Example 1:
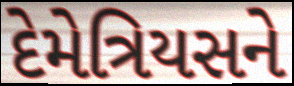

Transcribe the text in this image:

દેમેત્રિયસને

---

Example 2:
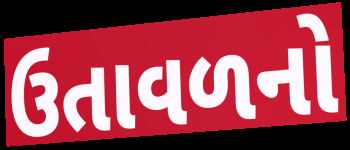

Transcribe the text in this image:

ઉતાવળનો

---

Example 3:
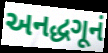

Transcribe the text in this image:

અનદ્ધગૂનં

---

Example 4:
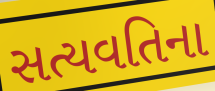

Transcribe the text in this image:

સત્યવતિના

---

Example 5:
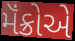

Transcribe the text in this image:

મૅંક્રોએ